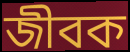
জীবক